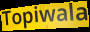
Topiwala